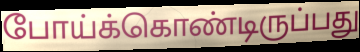
போய்க்கொண்டிருப்பது